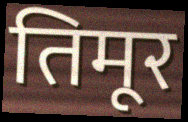
तिमूर